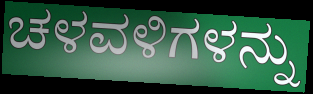
ಚಳವಳಿಗಳನ್ನು